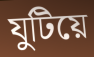
যুটিয়ে